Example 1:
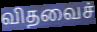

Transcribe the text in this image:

விதவைச்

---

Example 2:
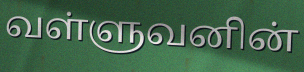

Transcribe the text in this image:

வள்ளுவனின்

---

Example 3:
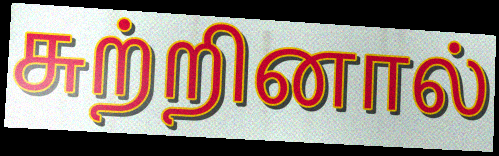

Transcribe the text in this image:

சுற்றினால்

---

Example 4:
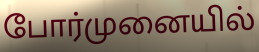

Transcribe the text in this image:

போர்முனையில்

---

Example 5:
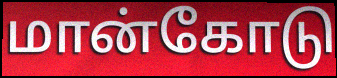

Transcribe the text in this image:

மான்கோடு